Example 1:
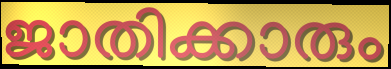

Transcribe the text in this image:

ജാതിക്കാരും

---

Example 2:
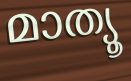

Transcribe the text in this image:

മാത്യൂ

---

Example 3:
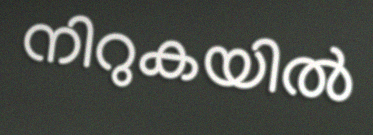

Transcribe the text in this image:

നിറുകയിൽ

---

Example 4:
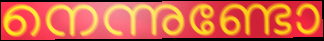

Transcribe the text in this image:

നെന്നുണ്ടോ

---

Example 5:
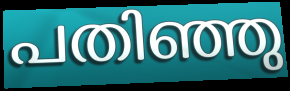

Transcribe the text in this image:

പതിഞ്ഞു